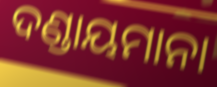
ଦଣ୍ଡାୟମାନା